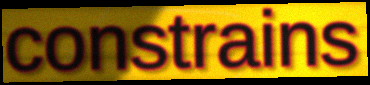
constrains